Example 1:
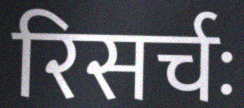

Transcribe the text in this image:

रिसर्चः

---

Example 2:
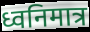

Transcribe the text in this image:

ध्वनिमात्र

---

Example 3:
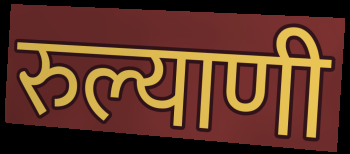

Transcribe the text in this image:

रुल्याणी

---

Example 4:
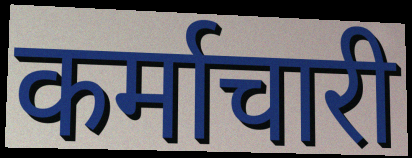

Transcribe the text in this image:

कर्माचारी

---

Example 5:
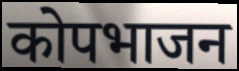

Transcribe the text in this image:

कोपभाजन